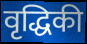
वृद्धिकी